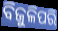
ବିଜୁଳିପରି